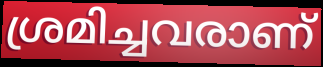
ശ്രമിച്ചവരാണ്